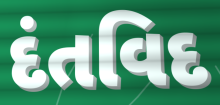
દંતવિદ